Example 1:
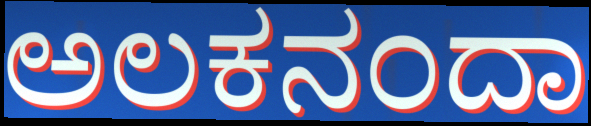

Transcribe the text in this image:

ಅಲಕನಂದಾ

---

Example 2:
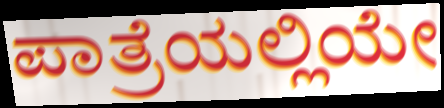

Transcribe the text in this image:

ಪಾತ್ರೆಯಲ್ಲಿಯೇ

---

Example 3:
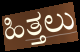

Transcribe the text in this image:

ಹಿತ್ತಲು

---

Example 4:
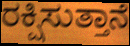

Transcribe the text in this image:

ರಕ್ಷಿಸುತ್ತಾನೆ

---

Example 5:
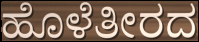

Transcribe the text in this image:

ಹೊಳೆತೀರದ